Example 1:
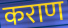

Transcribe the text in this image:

कराण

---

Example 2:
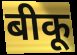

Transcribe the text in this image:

बीकू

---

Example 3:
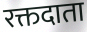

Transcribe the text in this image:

रक्तदाता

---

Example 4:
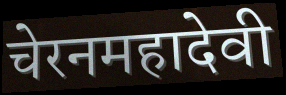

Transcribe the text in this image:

चेरनमहादेवी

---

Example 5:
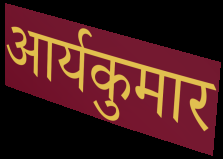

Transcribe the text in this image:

आर्यकुमार